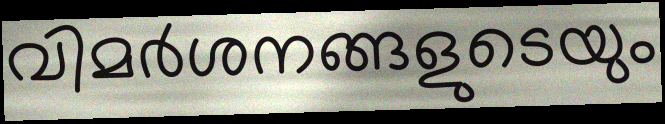
വിമർശനങ്ങളുടെയും